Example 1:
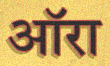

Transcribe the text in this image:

ऑरा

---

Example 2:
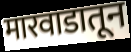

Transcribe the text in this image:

मारवाडातून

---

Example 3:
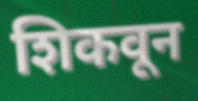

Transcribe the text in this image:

शिकवून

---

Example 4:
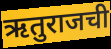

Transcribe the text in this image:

ऋतुराजची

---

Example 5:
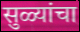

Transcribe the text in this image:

सुळ्यांचा